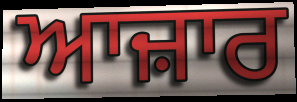
ਆਜ਼ਾਰ